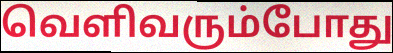
வெளிவரும்போது